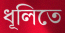
ধূলিতে